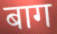
बाग